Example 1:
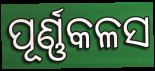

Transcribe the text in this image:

ପୂର୍ଣ୍ଣକଳସ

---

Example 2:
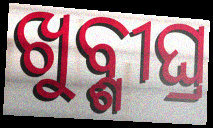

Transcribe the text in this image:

ଖୁବ୍ଶୀଘ୍ର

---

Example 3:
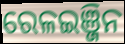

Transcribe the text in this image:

ରେଳଇଞ୍ଜିନ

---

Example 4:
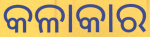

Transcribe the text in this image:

କଳାକାର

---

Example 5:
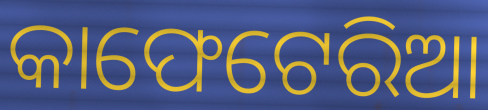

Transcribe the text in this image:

କାଫେଟେରିଆ